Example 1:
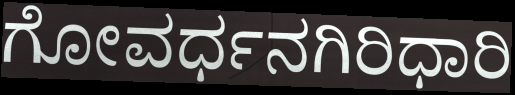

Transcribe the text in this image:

ಗೋವರ್ಧನಗಿರಿಧಾರಿ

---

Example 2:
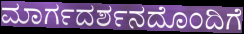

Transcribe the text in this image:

ಮಾರ್ಗದರ್ಶನದೊಂದಿಗೆ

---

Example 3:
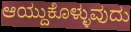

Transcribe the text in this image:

ಆಯ್ದುಕೊಳ್ಳುವುದು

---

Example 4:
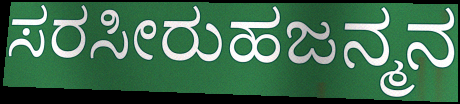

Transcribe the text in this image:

ಸರಸೀರುಹಜನ್ಮನ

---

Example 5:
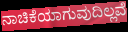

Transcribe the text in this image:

ನಾಚಿಕೆಯಾಗುವುದಿಲ್ಲವೆ